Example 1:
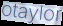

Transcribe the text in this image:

otaylor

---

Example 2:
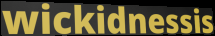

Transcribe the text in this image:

wickidnessis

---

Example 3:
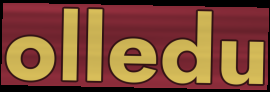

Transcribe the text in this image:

olledu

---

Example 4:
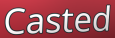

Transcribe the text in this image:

Casted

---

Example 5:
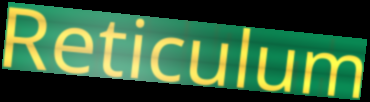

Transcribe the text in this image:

Reticulum